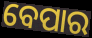
ବେପାର